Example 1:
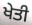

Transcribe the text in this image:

ਖੇਤੀ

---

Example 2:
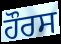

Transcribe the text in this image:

ਹੌਰਸ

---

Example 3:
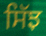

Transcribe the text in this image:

ਸਿੱਝ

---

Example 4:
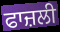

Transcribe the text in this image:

ਫਾਜ਼ਲੀ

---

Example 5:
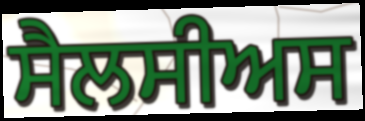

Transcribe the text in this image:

ਸੈਲਸੀਅਸ